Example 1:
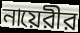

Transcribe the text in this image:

নায়েরীর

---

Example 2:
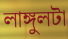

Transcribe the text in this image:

লাঙ্গুলটা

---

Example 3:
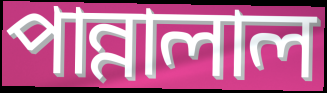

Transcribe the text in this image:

পান্নালাল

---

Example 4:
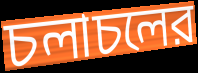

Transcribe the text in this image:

চলাচলের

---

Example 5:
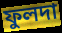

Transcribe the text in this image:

ফুলদা